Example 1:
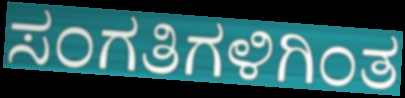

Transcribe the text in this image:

ಸಂಗತಿಗಳಿಗಿಂತ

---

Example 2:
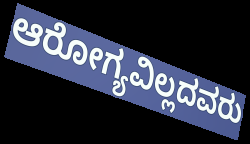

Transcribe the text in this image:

ಆರೋಗ್ಯವಿಲ್ಲದವರು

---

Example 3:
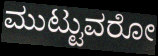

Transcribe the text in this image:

ಮುಟ್ಟುವರೋ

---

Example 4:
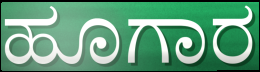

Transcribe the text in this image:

ಹೂಗಾರ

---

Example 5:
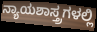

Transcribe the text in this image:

ನ್ಯಾಯಶಾಸ್ತ್ರಗಳಲ್ಲಿ